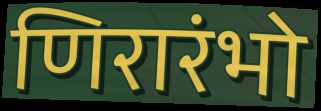
णिरारंभो